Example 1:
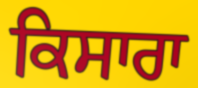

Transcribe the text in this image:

ਕਿਸਾਰਾ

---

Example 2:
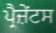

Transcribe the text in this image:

ਪ੍ਰੈਜ਼ੇਂਟਸ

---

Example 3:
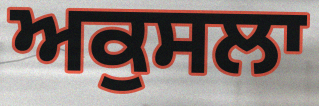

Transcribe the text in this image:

ਅਕੁਸਲਾ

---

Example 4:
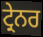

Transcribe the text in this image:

ਟ੍ਰੇਨਰ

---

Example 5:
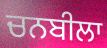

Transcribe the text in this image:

ਚਨਬੀਲਾ